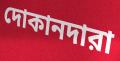
দোকানদারা